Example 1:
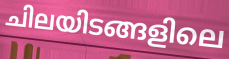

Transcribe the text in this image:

ചിലയിടങ്ങളിലെ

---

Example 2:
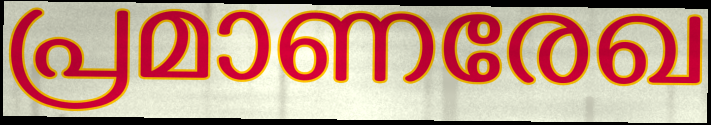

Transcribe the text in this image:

പ്രമാണരേഖ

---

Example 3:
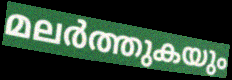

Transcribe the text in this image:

മലർത്തുകയും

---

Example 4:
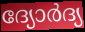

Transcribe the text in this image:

ദ്യോർദ്യ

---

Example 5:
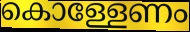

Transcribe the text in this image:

കൊള്ളേണം